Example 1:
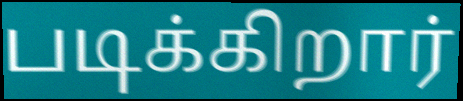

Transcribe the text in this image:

படிக்கிறார்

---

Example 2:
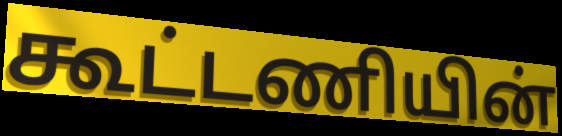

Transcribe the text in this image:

கூட்டணியின்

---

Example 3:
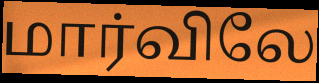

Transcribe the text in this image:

மார்விலே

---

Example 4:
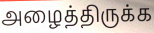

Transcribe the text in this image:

அழைத்திருக்க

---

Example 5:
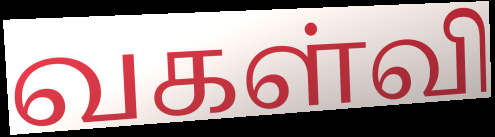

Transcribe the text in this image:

வகள்வி